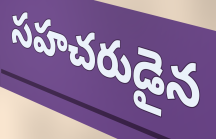
సహచరుడైన